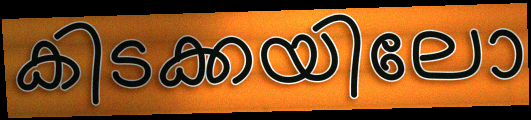
കിടക്കയിലോ